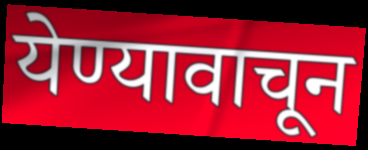
येण्यावाचून